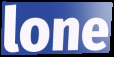
lone